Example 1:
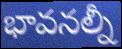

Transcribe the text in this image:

భావనల్నీ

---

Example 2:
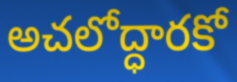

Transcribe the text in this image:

అచలోద్ధారకో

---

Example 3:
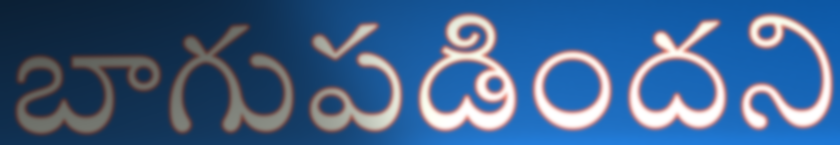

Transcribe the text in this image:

బాగుపడిందని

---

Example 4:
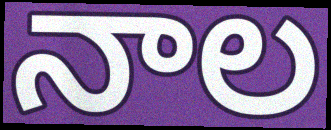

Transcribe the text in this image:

నాల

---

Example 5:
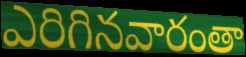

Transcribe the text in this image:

ఎరిగినవారంతా